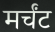
मर्चंट